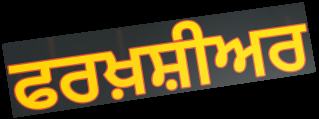
ਫਰਖ਼ਸ਼ੀਅਰ